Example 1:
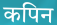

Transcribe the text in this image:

कपिन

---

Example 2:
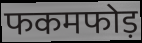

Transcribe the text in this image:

फकमफोड़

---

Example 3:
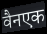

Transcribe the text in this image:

वैनएक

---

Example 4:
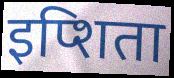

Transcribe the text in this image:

इप्शिता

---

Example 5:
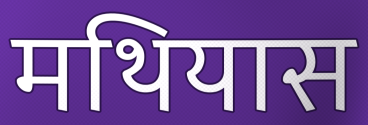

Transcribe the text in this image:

मथियास